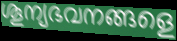
ശൂന്യഭവനങ്ങളെ